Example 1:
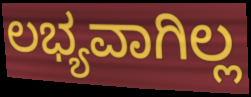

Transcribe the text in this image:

ಲಭ್ಯವಾಗಿಲ್ಲ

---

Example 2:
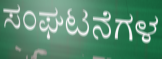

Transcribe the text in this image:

ಸಂಘಟನೆಗಳ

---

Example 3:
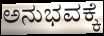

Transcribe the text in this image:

ಅನುಭವಕ್ಕೆ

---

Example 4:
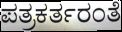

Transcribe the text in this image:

ಪತ್ರಕರ್ತರಂತೆ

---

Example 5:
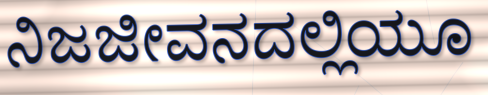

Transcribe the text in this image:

ನಿಜಜೀವನದಲ್ಲಿಯೂ